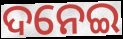
ଦନେଇ